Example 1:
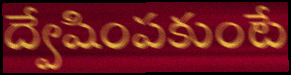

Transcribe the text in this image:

ద్వేషింపకుంటే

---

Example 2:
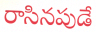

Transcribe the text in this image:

రాసినపుడే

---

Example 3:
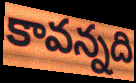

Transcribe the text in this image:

కావన్నది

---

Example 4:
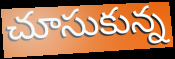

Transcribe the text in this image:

చూసుకున్న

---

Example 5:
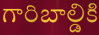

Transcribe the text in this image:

గారిబాల్డికి